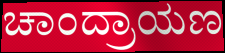
ಚಾಂದ್ರಾಯಣ